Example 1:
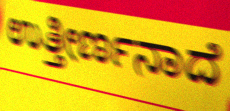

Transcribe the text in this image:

ಉತ್ತೀರ್ಣನಾದೆ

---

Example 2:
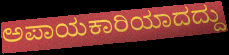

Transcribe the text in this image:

ಅಪಾಯಕಾರಿಯಾದದ್ದು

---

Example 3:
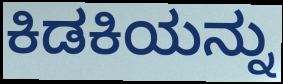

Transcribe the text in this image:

ಕಿಡಕಿಯನ್ನು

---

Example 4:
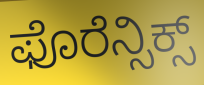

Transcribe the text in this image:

ಫೊರೆನ್ಸಿಕ್ಸ್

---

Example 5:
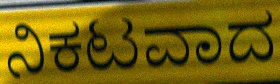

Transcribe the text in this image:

ನಿಕಟವಾದ